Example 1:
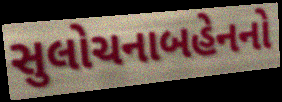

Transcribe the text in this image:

સુલોચનાબહેનનો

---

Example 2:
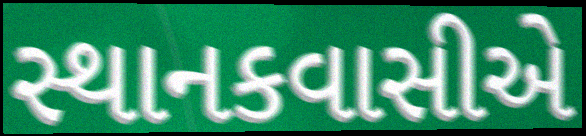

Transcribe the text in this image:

સ્થાનકવાસીએ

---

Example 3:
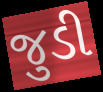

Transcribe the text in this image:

જુડી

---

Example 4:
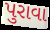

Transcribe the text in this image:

પુરાવા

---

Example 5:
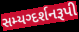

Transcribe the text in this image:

સમ્યગ્દર્શનરૂપી